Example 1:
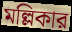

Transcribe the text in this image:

মল্লিকার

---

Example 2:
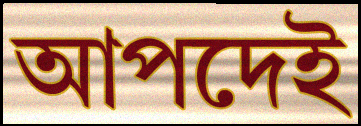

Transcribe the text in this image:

আপদেই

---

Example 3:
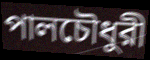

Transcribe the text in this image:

পালচৌধুরী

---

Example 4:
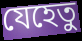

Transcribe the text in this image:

যেহেতু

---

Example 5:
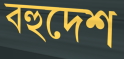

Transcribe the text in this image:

বহুদেশ